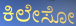
ಕಿಲೇಸೋ